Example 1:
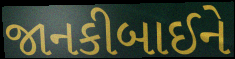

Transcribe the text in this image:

જાનકીબાઈને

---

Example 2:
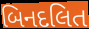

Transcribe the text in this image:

બિનદલિત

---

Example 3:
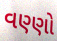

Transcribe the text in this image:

વણ્ણો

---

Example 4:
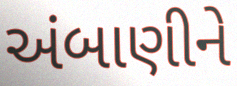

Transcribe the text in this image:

અંબાણીને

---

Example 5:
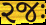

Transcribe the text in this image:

રજઃ